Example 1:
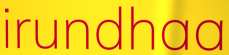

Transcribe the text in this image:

irundhaa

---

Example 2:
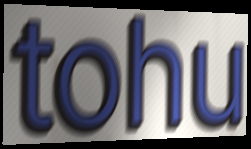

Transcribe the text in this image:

tohu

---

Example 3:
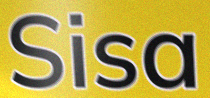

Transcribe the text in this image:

Sisa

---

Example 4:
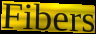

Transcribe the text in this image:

Fibers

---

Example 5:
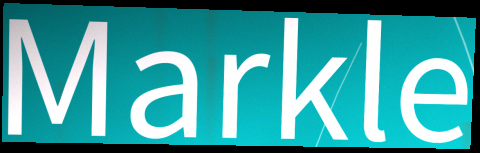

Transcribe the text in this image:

Markle